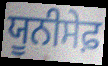
ਯੂਨੀਸੇਫ਼